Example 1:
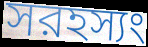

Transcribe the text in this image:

সরহস্যং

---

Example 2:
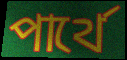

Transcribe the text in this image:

পার্থে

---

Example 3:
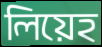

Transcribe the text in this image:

লিয়েহ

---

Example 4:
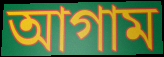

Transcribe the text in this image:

আগাম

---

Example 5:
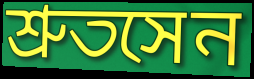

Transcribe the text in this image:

শ্রুতসেন